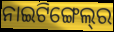
ନାଇଟିଙ୍ଗେଲ୍‌ର